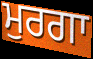
ਮੁਰਗਾ